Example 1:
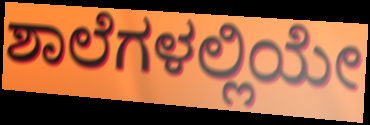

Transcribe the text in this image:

ಶಾಲೆಗಳಲ್ಲಿಯೇ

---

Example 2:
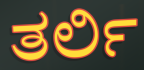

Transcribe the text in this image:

ತರ್ಲಿ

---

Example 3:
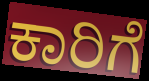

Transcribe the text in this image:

ಕಾರಿಗೆ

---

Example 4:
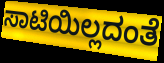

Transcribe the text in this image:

ಸಾಟಿಯಿಲ್ಲದಂತೆ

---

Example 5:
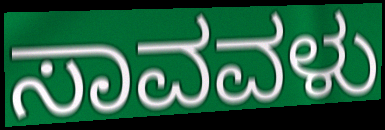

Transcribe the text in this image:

ಸಾವವಳು